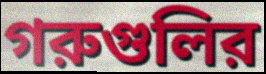
গরুগুলির